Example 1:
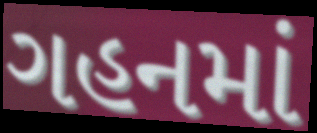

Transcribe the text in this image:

ગહનમાં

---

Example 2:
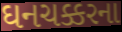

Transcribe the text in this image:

ઘનચક્કરના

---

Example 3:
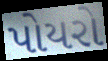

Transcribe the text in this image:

પોયરો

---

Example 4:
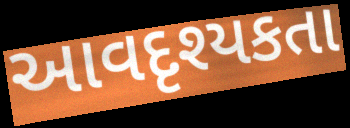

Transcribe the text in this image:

આવદૃશ્યકતા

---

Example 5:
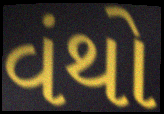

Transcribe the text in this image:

વંથો